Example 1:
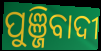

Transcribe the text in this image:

ପୁଞ୍ଜିବାଦୀ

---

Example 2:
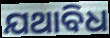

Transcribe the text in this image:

ଯଥାବିଧ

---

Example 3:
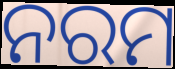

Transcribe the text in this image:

ନରମ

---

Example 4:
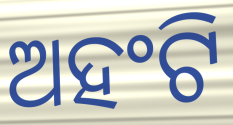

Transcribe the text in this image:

ଅହଂଟି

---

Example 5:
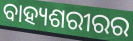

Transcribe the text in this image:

ବାହ୍ୟଶରୀରର